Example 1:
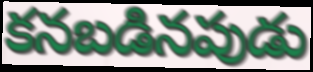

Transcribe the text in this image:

కనబడినపుడు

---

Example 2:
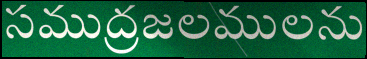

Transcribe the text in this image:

సముద్రజలములను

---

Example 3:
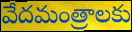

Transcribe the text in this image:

వేదమంత్రాలకు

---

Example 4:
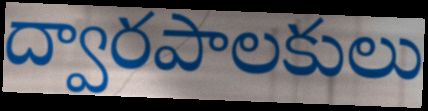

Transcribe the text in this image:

ద్వారపాలకులు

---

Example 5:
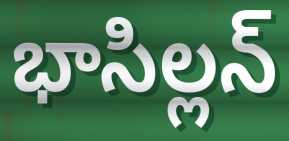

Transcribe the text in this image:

భాసిల్లన్